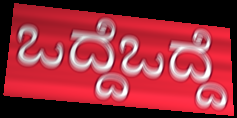
ಒದ್ದೆಒದ್ದೆ